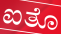
ಐತೊ